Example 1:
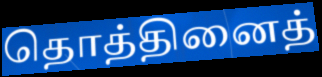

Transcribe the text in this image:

தொத்தினைத்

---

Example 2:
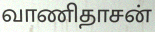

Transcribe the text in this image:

வாணிதாசன்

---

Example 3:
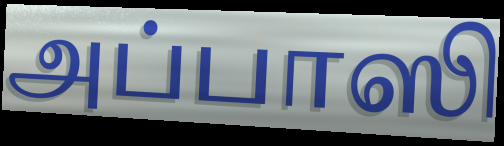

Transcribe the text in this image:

அப்பாஸி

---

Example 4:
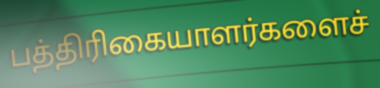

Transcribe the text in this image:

பத்திரிகையாளர்களைச்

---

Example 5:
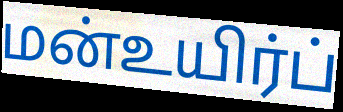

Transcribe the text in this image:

மன்உயிர்ப்